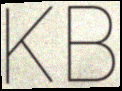
KB